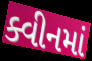
ક્વીનમાં